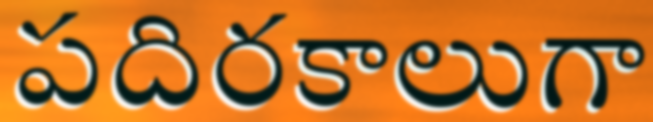
పదిరకాలుగా